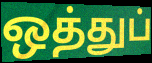
ஒத்துப்